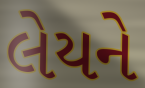
લેયને